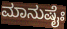
ಮಾನುಷೈಃ